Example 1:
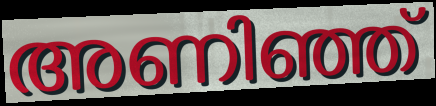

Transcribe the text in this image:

അണിഞ്ഞ്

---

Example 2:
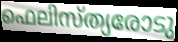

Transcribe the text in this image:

ഫെലിസ്ത്യരോടു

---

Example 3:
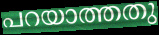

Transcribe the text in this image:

പറയാത്തതു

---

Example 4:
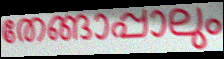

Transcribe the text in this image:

തേങ്ങാപ്പാലും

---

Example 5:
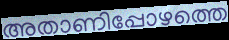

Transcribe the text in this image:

അതാണിപ്പോഴത്തെ